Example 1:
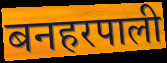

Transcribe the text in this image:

बनहरपाली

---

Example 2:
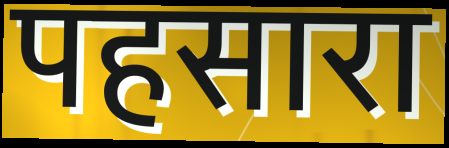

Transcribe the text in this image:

पहसारा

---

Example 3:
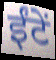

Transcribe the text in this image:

ईंटें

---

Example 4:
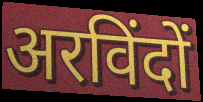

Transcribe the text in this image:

अरविंदों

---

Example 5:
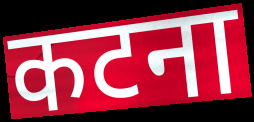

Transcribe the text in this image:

कटना